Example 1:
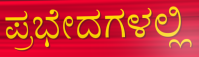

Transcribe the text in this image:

ಪ್ರಭೇದಗಳಲ್ಲಿ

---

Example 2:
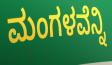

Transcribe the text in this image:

ಮಂಗಳವೆನ್ನಿ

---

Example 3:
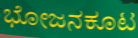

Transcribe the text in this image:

ಭೋಜನಕೂಟ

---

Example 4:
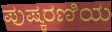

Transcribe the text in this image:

ಪುಷ್ಕರಣಿಯ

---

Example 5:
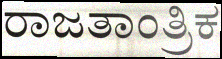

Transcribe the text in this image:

ರಾಜತಾಂತ್ರಿಕ